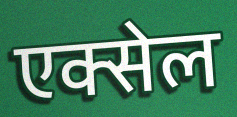
एक्सेल